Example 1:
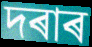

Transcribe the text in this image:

দৰাৰ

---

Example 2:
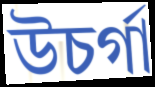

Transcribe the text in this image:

উচৰ্গা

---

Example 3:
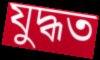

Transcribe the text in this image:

যুদ্ধত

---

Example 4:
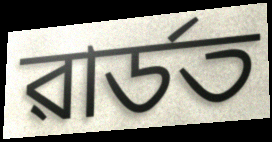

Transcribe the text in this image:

ৱাৰ্ডত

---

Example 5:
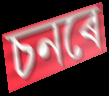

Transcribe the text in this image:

চনৰে